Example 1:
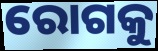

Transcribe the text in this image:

ରୋଗକୁ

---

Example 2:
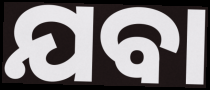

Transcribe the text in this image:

ଯବା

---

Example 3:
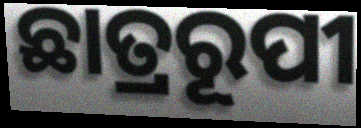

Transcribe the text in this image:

ଛାତ୍ରରୂପୀ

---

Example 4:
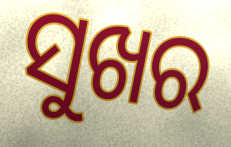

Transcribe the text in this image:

ସୁଖର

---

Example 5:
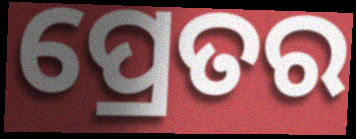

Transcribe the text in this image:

ପ୍ରେତର